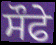
ਸੌਫੇ